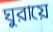
ঘুরায়ে